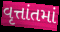
વૃત્તાંતમાં